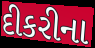
દીકરીના